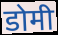
डोमी